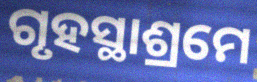
ଗୃହସ୍ଥାଶ୍ରମେ